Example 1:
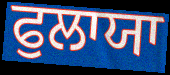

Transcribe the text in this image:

ਫੁਲਾਯਾ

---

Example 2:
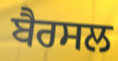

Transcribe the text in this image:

ਬੈਰਸਲ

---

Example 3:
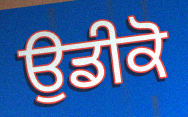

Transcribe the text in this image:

ਉਡੀਕੋ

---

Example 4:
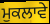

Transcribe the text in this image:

ਮੁਕਲਾਵੇ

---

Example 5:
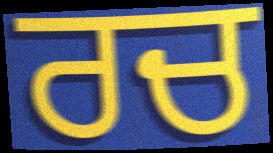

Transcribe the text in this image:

ਰਚ